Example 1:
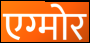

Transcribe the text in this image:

एग्मोर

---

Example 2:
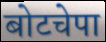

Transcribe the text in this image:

बोटचेपा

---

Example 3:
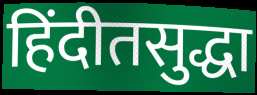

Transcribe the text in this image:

हिंदीतसुद्धा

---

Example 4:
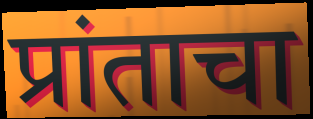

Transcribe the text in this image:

प्रांताचा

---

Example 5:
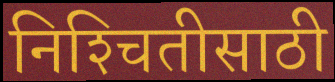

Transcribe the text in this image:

निश्चितीसाठी